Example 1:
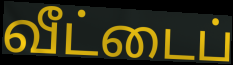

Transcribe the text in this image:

வீட்டைப்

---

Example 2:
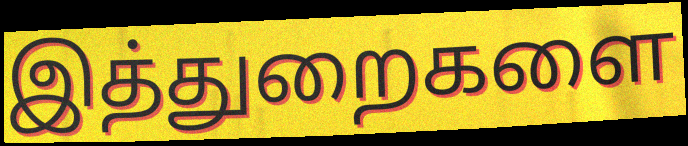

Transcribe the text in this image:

இத்துறைகளை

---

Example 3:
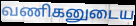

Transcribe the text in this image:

வணிகனுடைய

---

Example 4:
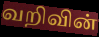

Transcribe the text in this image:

வறிவின்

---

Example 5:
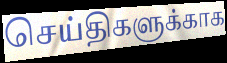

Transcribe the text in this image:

செய்திகளுக்காக